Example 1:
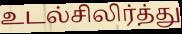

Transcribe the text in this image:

உடல்சிலிர்த்து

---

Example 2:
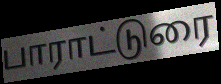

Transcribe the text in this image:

பாராட்டுரை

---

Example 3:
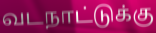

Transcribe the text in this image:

வடநாட்டுக்கு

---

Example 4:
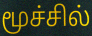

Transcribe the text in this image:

மூச்சில்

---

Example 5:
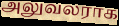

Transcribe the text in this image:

அலுவலராக